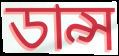
ডান্স